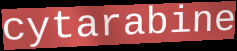
cytarabine